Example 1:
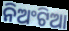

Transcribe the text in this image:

ନିଅଂଟିଆ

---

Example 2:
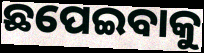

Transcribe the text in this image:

ଛପେଇବାକୁ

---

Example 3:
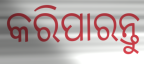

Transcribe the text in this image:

କରିପାରନ୍ତୁ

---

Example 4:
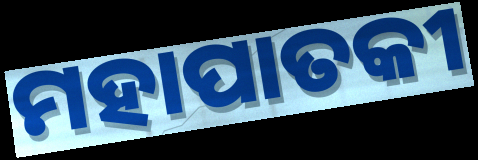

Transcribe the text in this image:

ମହାପାତକୀ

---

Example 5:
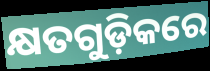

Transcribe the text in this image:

କ୍ଷତଗୁଡ଼ିକରେ